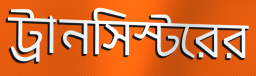
ট্রানসিস্টরের